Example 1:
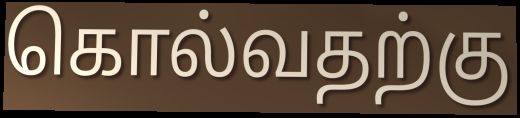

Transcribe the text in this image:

கொல்வதற்கு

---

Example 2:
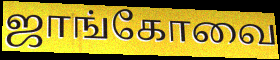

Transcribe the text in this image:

ஜாங்கோவை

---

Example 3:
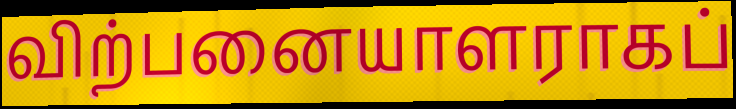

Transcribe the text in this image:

விற்பனையாளராகப்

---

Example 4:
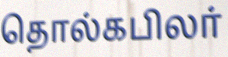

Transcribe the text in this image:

தொல்கபிலர்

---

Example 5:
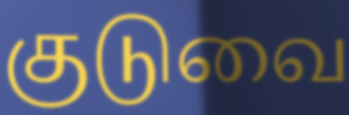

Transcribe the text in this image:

குடுவை